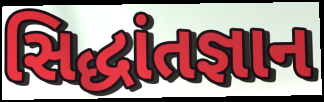
સિદ્ધાંતજ્ઞાન